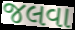
જલવા